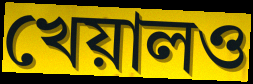
খেয়ালও